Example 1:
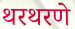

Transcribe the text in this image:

थरथरणे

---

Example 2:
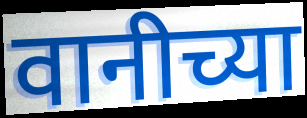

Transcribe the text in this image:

वानीच्या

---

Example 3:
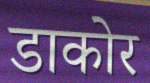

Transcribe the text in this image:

डाकोर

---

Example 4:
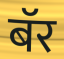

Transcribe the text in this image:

बॅर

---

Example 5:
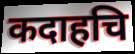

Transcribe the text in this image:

कदाहचि